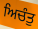
ਅਿਚੰਤੁ